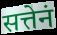
सत्तेनं